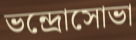
ভন্দ্রোসোভা